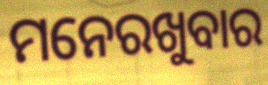
ମନେରଖୁବାର